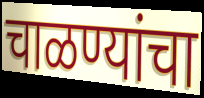
चाळण्यांचा